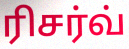
ரிசர்வ்